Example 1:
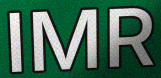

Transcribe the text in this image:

IMR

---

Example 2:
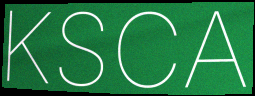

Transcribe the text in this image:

KSCA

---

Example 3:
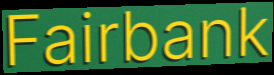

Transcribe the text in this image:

Fairbank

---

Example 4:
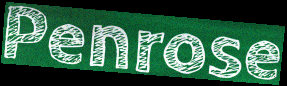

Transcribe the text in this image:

Penrose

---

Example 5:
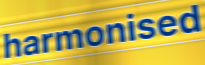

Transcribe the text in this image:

harmonised